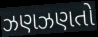
ઝણઝણતો